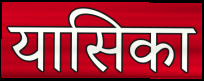
यासिका